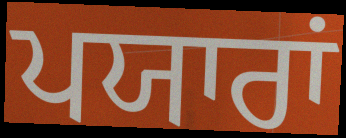
ਪਯਾਰਾਂ